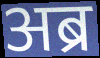
अब्र